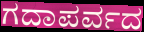
ಗದಾಪರ್ವದ